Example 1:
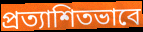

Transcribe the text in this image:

প্রত্যাশিতভাবে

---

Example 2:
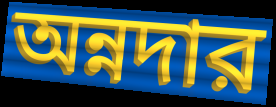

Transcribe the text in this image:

অন্নদার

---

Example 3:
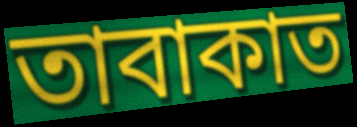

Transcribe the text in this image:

তাবাকাত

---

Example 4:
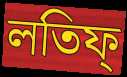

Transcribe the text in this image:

লতিফ্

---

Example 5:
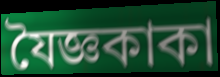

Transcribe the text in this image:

যৈজ্ঞকাকা